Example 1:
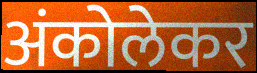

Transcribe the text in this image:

अंकोलेकर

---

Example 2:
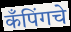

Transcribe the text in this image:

कँपिंगचे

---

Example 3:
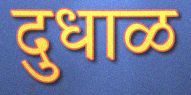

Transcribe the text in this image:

दुधाळ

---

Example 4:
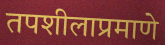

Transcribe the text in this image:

तपशीलाप्रमाणे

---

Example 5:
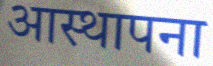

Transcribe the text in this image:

आस्थापना